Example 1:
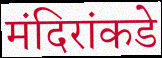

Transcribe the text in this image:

मंदिरांकडे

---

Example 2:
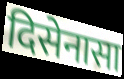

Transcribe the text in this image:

दिसेनासा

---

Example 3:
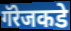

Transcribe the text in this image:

गॅरेजकडे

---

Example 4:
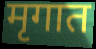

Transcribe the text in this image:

मृगात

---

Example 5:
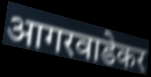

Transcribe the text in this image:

आगरवाडेकर